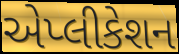
એપ્લીકેશન